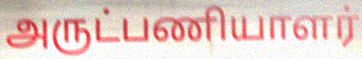
அருட்பணியாளர்